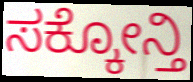
ಸಕ್ಕೋನ್ತಿ